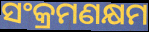
ସଂକ୍ରମଣକ୍ଷମ